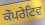
ਕੌਪਰੇਟਿਵ